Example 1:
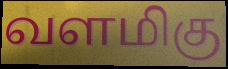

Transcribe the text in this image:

வளமிகு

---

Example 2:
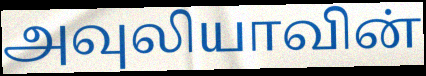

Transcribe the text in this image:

அவுலியாவின்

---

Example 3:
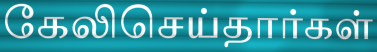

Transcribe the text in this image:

கேலிசெய்தார்கள்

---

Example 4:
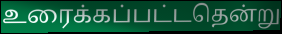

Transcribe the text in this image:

உரைக்கப்பட்டதென்று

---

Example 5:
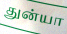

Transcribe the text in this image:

துன்யா